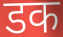
डक